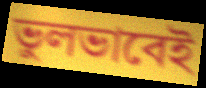
ভুলভাবেই